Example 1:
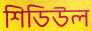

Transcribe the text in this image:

শিডিউল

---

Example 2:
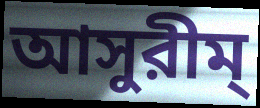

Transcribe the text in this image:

আসুরীম্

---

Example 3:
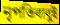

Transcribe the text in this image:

নৃপতিবাবুই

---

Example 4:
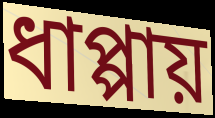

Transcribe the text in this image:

ধাপ্পায়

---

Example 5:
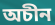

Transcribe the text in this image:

অচীন